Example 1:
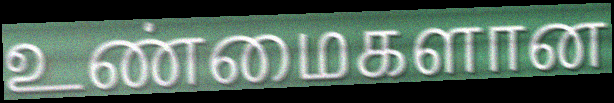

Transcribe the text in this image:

உண்மைகளான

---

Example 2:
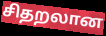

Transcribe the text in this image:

சிதறலான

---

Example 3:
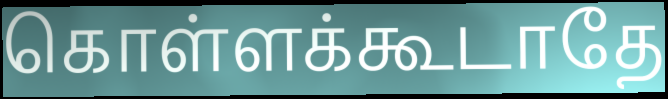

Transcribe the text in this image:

கொள்ளக்கூடாதே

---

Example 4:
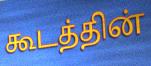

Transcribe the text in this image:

கூடத்தின்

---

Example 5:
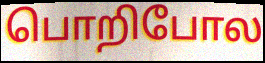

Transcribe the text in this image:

பொறிபோல